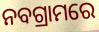
ନବଗ୍ରାମରେ